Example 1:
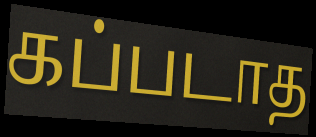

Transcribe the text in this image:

கப்படாத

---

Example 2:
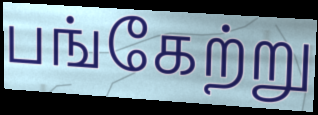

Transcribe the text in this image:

பங்கேற்று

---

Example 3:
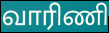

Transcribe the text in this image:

வாரிணி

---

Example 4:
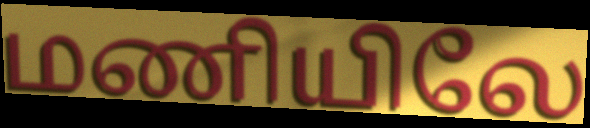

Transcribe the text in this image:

மணியிலே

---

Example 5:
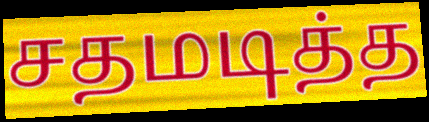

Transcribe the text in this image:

சதமடித்த